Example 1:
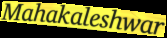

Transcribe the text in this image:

Mahakaleshwar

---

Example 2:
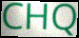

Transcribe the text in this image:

CHQ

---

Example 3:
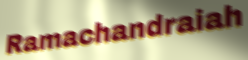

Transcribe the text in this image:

Ramachandraiah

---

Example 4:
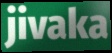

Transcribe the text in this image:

jivaka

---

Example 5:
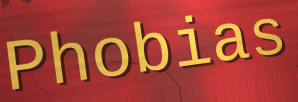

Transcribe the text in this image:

Phobias